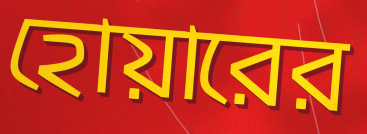
হোয়ারের